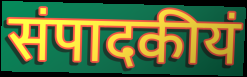
संपादकीयं